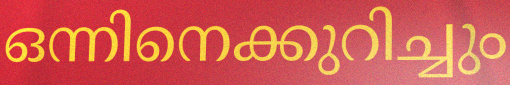
ഒന്നിനെക്കുറിച്ചും